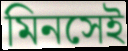
মিনসেই